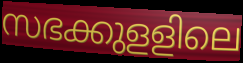
സഭക്കുളളിലെ